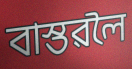
বাস্তৱলৈ